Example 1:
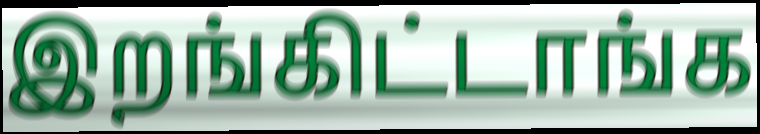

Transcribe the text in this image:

இறங்கிட்டாங்க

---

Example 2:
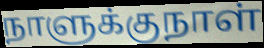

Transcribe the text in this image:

நாளுக்குநாள்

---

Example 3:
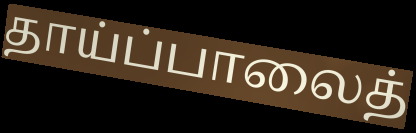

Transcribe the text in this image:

தாய்ப்பாலைத்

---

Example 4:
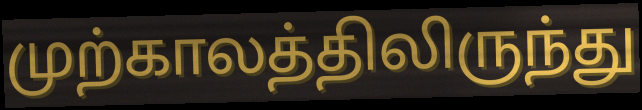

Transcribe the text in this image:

முற்காலத்திலிருந்து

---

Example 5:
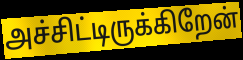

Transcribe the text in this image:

அச்சிட்டிருக்கிறேன்